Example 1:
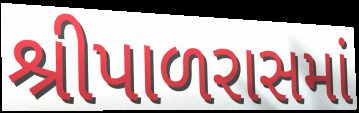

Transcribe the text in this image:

શ્રીપાળરાસમાં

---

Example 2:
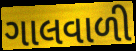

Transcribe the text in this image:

ગાલવાળી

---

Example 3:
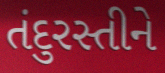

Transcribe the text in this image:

તંદુરસ્તીને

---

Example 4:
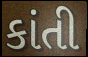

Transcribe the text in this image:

કાંતી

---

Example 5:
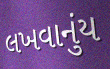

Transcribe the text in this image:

લખવાનુંય